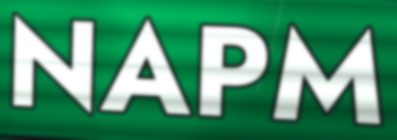
NAPM